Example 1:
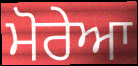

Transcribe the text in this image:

ਮੋਰੇਆ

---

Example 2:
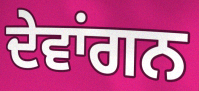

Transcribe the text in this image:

ਦੇਵਾਂਗਨ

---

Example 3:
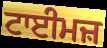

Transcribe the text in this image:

ਟਾਈਮਜ਼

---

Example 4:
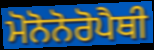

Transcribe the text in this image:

ਮੋਨੋਨੋਰੋਪੈਥੀ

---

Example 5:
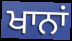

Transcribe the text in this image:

ਖਾਨਾਂ